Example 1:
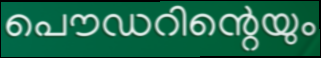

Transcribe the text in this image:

പൌഡറിന്റെയും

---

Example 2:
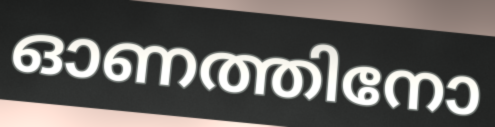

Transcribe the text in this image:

ഓണത്തിനോ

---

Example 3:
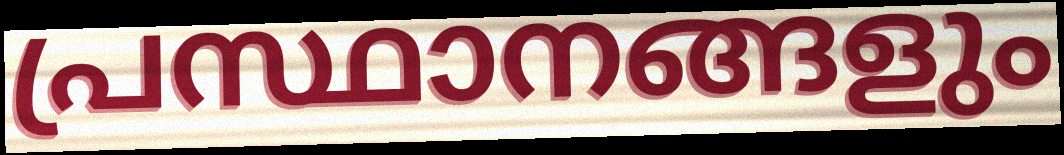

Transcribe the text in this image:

പ്രസ്ഥാനങ്ങളും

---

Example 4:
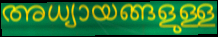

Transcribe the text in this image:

അധ്യായങ്ങളുള്ള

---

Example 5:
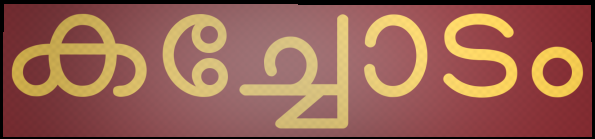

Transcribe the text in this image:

കച്ചോടം